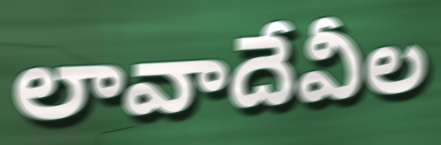
లావాదేవీల